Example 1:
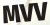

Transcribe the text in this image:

MVV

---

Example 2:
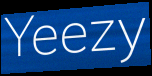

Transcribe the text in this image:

Yeezy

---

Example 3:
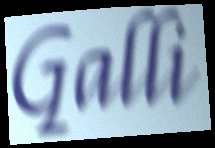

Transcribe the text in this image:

Galli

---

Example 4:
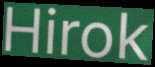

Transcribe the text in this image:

Hirok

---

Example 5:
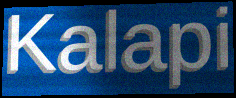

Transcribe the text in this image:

Kalapi